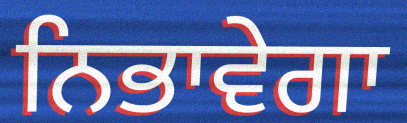
ਨਿਭਾਵੇਗਾ